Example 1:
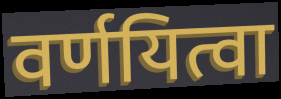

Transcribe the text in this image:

वर्णयित्वा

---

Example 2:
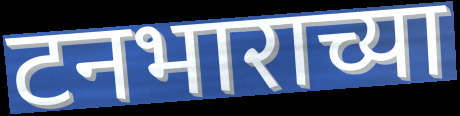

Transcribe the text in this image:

टनभाराच्या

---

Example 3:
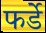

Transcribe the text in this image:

फर्डे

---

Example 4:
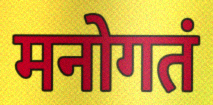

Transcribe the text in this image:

मनोगतं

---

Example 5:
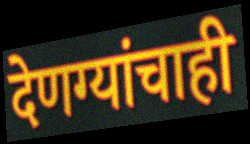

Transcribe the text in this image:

देणग्यांचाही